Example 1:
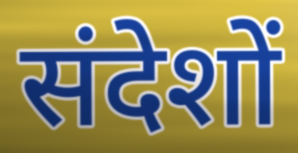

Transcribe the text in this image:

संदेशों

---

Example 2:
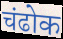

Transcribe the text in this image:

चंढोक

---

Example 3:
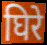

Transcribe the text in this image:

घिरे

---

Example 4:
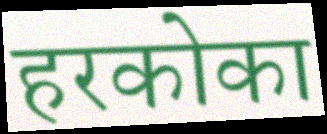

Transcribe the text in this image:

हरकोका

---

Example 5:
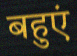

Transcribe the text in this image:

बहुएं